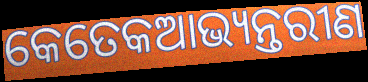
କେତେକଆଭ୍ୟନ୍ତରୀଣ